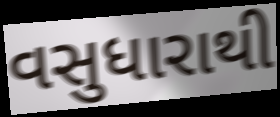
વસુધારાથી